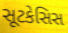
સૂટકેસિસ